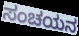
ಸಂಚಯನ